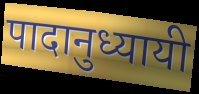
पादानुध्यायी